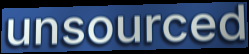
unsourced